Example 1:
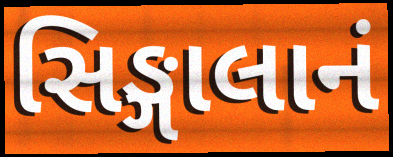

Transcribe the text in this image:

સિઙ્ગાલાનં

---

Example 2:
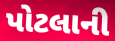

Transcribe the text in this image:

પોટલાની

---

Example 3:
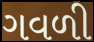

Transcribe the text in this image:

ગવળી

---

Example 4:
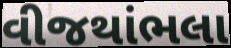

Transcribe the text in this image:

વીજથાંભલા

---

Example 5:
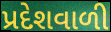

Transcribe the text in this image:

પ્રદેશવાળી